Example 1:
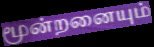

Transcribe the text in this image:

மூன்றனையும்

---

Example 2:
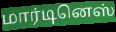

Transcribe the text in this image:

மார்டினெஸ்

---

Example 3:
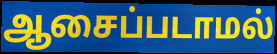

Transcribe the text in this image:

ஆசைப்படாமல்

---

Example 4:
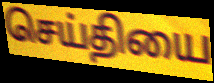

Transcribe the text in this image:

செய்தியை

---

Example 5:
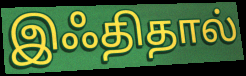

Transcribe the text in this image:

இஃதிதால்